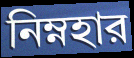
নিম্নহার